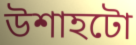
উশাহটো